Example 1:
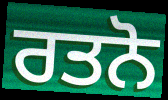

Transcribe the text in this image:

ਰਤਨੋ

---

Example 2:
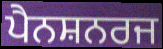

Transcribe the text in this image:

ਪੈਨਸ਼ਨਰਜ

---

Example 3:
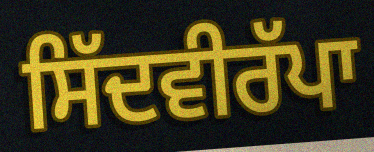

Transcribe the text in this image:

ਸਿੱਦਵੀਰੱਪਾ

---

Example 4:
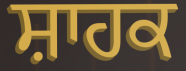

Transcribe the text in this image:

ਸ਼ਾਹਕ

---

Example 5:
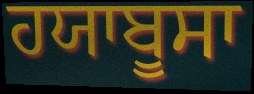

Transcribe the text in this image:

ਹਯਾਬੂਸਾ